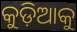
କୁଡ଼ିଆକୁ